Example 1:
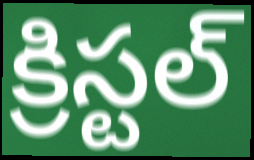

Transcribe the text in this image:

క్రిస్టల్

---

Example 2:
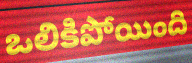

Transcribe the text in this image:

ఒలికిపోయింది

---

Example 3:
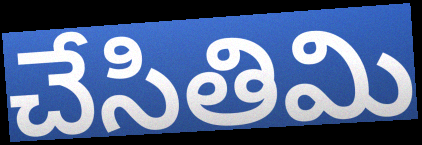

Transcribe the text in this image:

చేసితిమి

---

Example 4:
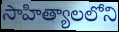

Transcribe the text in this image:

సాహిత్యాలలోని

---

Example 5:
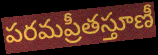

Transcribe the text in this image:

పరమప్రీతస్తూణీ